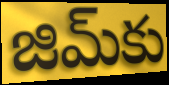
జిమ్‌కు